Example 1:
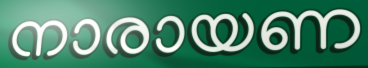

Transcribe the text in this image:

നാരായണ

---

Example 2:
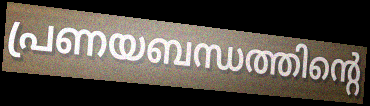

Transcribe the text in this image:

പ്രണയബന്ധത്തിന്റെ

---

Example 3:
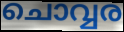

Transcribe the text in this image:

ചൊവ്വര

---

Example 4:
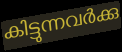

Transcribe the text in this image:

കിട്ടുന്നവർക്കു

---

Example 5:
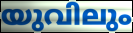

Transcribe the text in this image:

യുവിലും